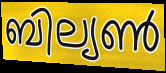
ബില്യൺ